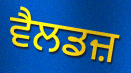
ਵੈਲਡਜ਼